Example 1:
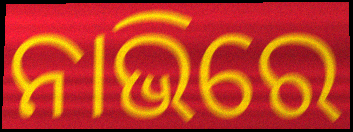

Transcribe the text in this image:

ନାଭିରେ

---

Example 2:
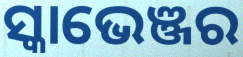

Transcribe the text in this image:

ସ୍କାଭେଞ୍ଜର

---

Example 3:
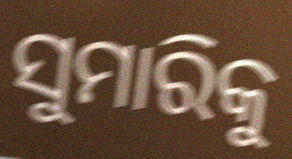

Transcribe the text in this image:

ସୁମାରିକୁ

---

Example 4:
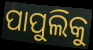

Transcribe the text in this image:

ପାପୁଲିକୁ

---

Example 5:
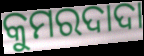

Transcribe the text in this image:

କୁମରଦାଦା